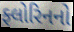
ફ્લોરિનનો